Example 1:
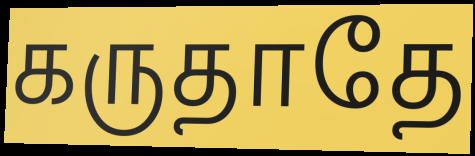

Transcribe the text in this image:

கருதாதே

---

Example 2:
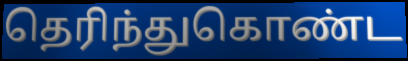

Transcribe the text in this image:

தெரிந்துகொண்ட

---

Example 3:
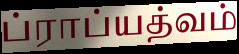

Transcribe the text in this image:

ப்ராப்யத்வம்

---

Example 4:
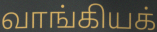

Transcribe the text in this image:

வாங்கியக்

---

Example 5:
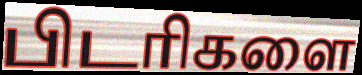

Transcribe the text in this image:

பிடரிகளை